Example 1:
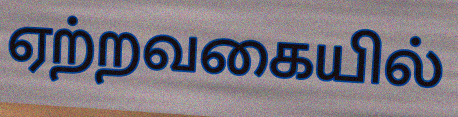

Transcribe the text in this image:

ஏற்றவகையில்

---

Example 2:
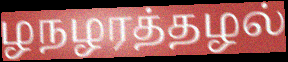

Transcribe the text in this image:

ழநழரத்தழல்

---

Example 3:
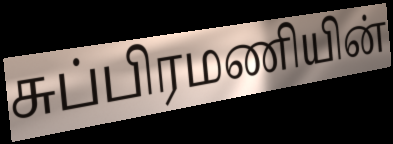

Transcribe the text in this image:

சுப்பிரமணியின்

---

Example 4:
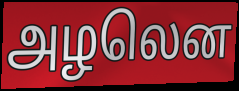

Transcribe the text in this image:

அழலென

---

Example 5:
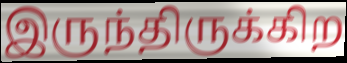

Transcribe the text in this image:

இருந்திருக்கிற